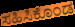
ಸಹಿಸಿಕೊಂಡ